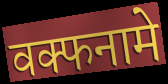
वक्फनामे